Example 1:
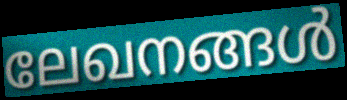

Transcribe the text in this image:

ലേഖനങ്ങൾ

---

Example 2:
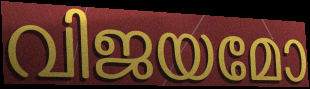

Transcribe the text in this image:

വിജയമോ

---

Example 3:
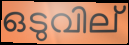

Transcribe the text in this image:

ഒടുവില്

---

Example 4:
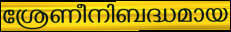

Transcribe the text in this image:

ശ്രേണീനിബദ്ധമായ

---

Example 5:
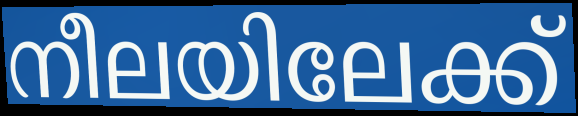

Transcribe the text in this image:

നീലയിലേക്ക്